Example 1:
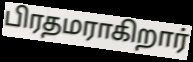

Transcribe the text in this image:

பிரதமராகிறார்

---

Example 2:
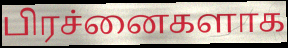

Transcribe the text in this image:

பிரச்னைகளாக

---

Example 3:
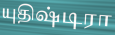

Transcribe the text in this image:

யுதிஷ்டிரா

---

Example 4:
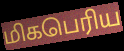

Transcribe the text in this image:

மிகபெரிய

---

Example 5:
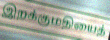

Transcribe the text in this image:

இறக்குமதியைத்